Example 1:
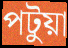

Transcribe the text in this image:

পটুয়া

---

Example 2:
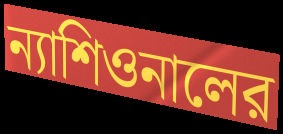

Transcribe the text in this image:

ন্যাশিওনালের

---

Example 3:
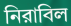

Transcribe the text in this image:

নিরাবিল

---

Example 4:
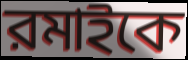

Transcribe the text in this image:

রমাইকে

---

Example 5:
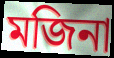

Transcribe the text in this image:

মজিনা